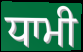
ਧਾਮੀ